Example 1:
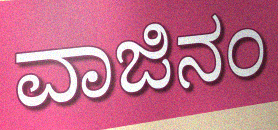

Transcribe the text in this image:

ವಾಜಿನಂ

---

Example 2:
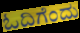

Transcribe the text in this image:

ಓದಿಗೆಂದು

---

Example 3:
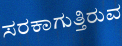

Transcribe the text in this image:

ಸರಕಾಗುತ್ತಿರುವ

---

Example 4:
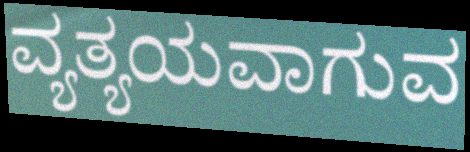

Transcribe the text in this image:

ವ್ಯತ್ಯಯವಾಗುವ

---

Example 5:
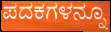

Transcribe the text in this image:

ಪದಕಗಳನ್ನೂ